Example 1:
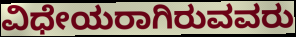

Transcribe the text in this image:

ವಿಧೇಯರಾಗಿರುವವರು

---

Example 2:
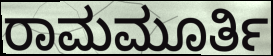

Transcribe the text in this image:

ರಾಮಮೂರ್ತಿ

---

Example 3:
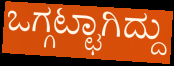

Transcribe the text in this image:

ಒಗ್ಗಟ್ಟಾಗಿದ್ದು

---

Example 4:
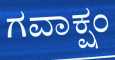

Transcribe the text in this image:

ಗವಾಕ್ಷಂ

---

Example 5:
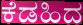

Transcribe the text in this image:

ಕೆಡಹಿದ